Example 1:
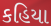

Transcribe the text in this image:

કહિયા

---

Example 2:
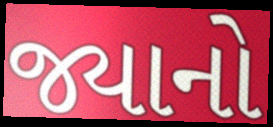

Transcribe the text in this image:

જ્યાનો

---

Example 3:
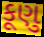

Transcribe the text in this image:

કૂણુ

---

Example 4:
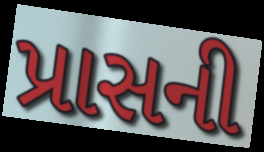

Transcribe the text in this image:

પ્રાસની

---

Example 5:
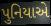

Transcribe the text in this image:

પુનિયાએ